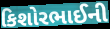
કિશોરભાઈની